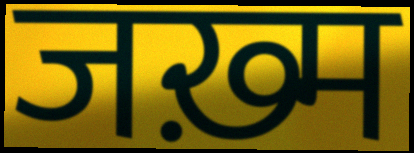
जख़्म